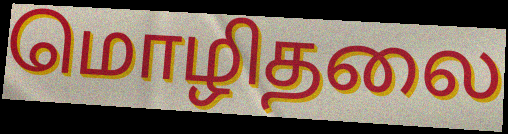
மொழிதலை